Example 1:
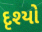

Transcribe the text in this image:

દૃશ્યો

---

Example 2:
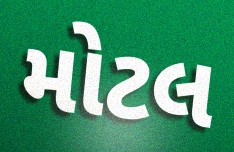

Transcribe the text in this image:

મોટલ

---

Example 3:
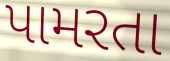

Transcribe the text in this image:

પામરતા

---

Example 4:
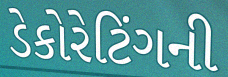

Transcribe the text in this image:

ડેકોરેટિંગની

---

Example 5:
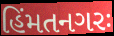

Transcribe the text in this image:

હિંમતનગરઃ